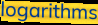
logarithms